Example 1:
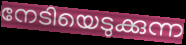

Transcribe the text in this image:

നേടിയെടുക്കുന്ന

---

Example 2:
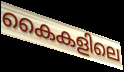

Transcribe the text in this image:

കൈകളിലെ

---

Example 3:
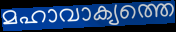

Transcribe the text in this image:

മഹാവാക്യത്തെ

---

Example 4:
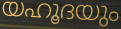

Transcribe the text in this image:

യഹൂദയും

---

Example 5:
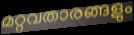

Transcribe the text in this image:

മറ്റവതാരങ്ങളും